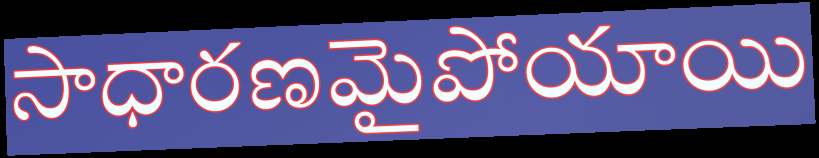
సాధారణమైపోయాయి